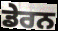
ਡੇਰਨ